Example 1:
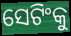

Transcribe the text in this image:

ସେଟିଂକୁ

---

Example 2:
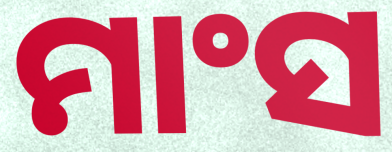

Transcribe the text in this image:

ମାଂସ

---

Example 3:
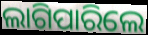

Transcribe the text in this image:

ଲାଗିପାରିଲେ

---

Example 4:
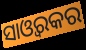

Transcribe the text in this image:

ସାଓ୍ୱରକର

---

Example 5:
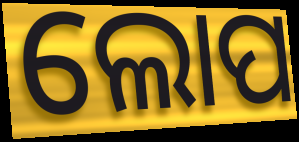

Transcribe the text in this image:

ଲୋପ